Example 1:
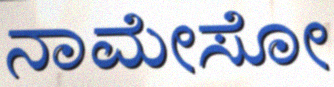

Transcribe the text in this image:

ನಾಮೇಸೋ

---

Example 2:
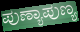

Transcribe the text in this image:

ಪುಣ್ಯಾಪುಣ್ಯ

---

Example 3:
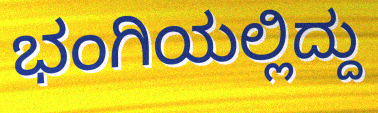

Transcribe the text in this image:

ಭಂಗಿಯಲ್ಲಿದ್ದು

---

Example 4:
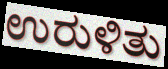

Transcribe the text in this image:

ಉರುಳಿತು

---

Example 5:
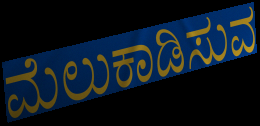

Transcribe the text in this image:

ಮೆಲುಕಾಡಿಸುವ